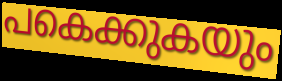
പകെക്കുകയും